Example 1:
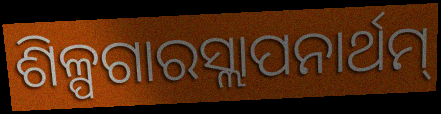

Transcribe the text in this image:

ଶିଳ୍ପଗାରସ୍ଲାପନାର୍ଥମ୍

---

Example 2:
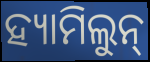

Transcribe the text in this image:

ହ୍ୟାମିଲୁନ୍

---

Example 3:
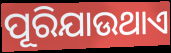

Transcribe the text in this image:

ପୂରିଯାଉଥାଏ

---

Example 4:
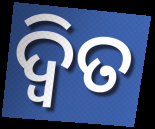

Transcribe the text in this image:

ଦ୍ୱିତ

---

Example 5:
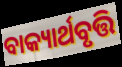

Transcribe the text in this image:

ବାକ୍ୟାର୍ଥବୃତ୍ତି